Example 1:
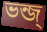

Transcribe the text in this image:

ভন্জ্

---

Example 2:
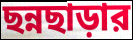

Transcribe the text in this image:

ছন্নছাড়ার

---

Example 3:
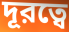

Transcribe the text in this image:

দূরত্বে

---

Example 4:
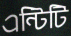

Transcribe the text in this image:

এন্টিটি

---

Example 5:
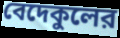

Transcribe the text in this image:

বেদেকুলের